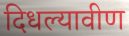
दिधल्यावीण